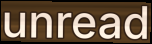
unread